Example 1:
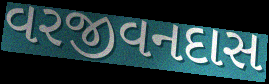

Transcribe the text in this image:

વરજીવનદાસ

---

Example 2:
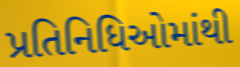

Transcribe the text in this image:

પ્રતિનિધિઓમાંથી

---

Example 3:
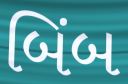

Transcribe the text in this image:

બિંબ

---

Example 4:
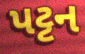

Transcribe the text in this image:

પટ્ટન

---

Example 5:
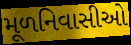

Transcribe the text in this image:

મૂળનિવાસીઓ